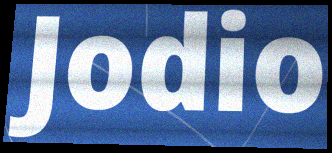
Jodio